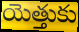
యెత్తుకు